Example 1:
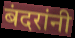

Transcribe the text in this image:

बंदरांनी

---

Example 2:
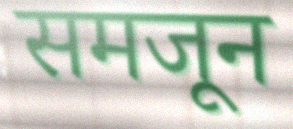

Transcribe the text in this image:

समजून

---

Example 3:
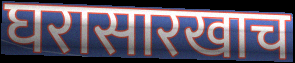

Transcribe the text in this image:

घरासारखाच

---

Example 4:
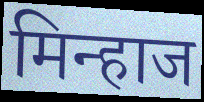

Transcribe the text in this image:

मिन्हाज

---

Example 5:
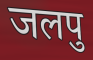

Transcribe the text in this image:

जलपु